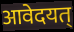
आवेदयत्